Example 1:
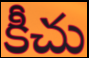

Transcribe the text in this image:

కీచు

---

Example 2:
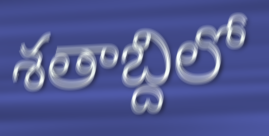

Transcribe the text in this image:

శతాబ్దిలో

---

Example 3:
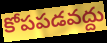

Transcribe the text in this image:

కోపపడవద్దు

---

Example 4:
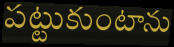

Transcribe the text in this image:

పట్టుకుంటాను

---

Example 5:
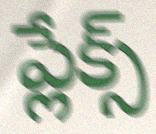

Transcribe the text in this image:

ప్లేక్స్